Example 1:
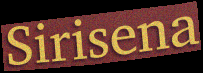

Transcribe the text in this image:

Sirisena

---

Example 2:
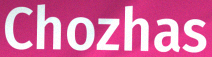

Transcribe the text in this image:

Chozhas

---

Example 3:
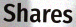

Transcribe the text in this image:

Shares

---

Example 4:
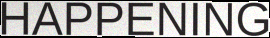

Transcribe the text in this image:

HAPPENING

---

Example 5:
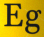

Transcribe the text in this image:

Eg